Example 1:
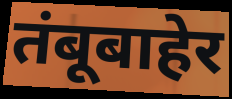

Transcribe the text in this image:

तंबूबाहेर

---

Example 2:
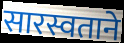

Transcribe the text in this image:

सारस्वताने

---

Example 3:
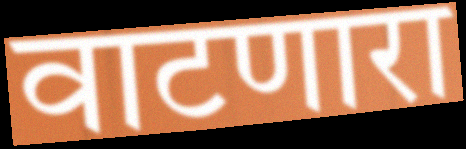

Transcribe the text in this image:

वाटणारा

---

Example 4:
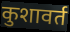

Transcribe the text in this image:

कुशावर्त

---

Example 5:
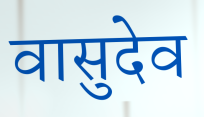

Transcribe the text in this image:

वासुदेव